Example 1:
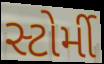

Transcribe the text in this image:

સ્ટોર્મી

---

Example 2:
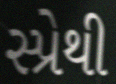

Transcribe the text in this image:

સ્પ્રેથી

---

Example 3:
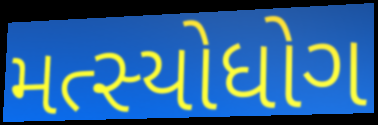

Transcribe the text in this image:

મત્સ્યોધોગ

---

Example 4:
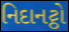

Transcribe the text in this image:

નિદાનટ્ઠો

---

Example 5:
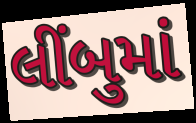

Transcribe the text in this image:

લીંબુમાં